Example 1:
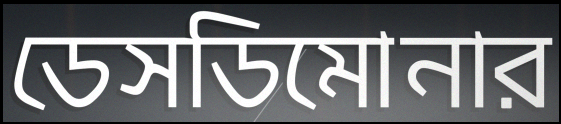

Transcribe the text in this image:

ডেসডিমোনার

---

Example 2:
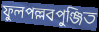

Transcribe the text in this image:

ফুলপল্লবপুঞ্জিত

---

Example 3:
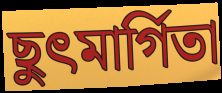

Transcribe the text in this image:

ছুৎমার্গিতা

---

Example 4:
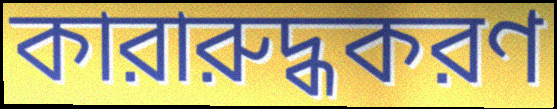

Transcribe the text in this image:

কারারুদ্ধকরণ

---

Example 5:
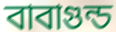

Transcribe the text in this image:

বাবাগুন্ড